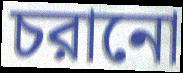
চরানো